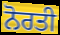
ਨੋਰਤੀ